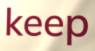
keep